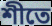
শীতে